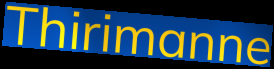
Thirimanne